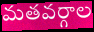
మతవర్గాల